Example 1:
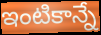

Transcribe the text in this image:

ఇంటికాన్నే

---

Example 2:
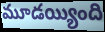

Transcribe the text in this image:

మూడయ్యింది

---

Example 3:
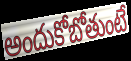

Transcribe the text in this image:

అందుకోబోతుంటే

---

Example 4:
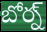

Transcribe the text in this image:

బోర్న్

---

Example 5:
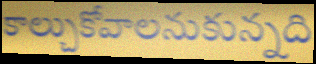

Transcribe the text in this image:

కాల్చుకోవాలనుకున్నది